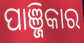
ପାଞ୍ଜିକାର